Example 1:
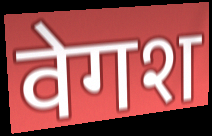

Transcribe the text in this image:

वेगश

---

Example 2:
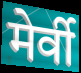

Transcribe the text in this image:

मेर्वी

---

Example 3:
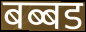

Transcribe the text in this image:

बब्बड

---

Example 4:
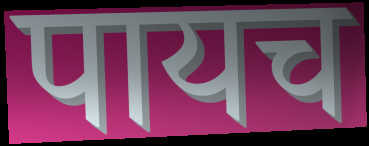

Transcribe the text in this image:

पायच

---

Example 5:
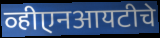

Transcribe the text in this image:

व्हीएनआयटीचे